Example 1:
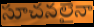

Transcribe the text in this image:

సూచనలైనా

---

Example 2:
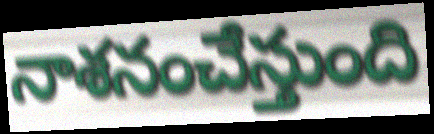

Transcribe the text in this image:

నాశనంచేస్తుంది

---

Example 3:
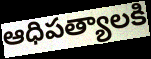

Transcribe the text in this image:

ఆధిపత్యాలకి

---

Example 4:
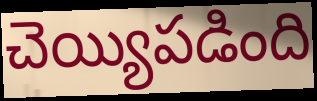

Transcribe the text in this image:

చెయ్యిపడింది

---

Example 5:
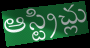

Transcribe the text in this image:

ఆస్ట్రిచ్లు